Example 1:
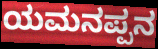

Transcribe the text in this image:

ಯಮನಪ್ಪನ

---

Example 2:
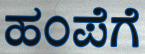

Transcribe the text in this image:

ಹಂಪೆಗೆ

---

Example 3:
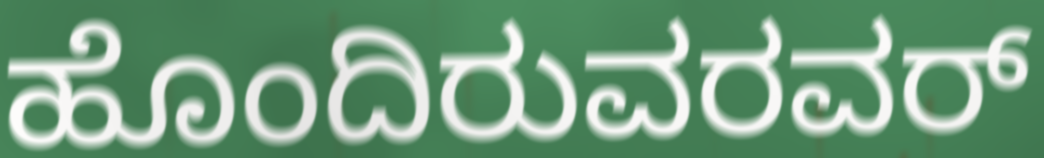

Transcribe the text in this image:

ಹೊಂದಿರುವರವರ್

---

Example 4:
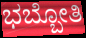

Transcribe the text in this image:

ಭಬ್ಬೋತಿ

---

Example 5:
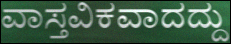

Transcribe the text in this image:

ವಾಸ್ತವಿಕವಾದದ್ದು